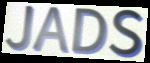
JADS